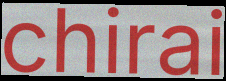
chirai